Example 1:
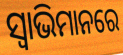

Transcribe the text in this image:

ସ୍ୱାଭିମାନରେ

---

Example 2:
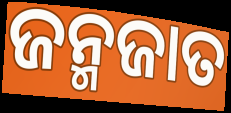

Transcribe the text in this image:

ଜନ୍ମଜାତ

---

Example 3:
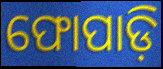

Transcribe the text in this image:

ଫୋପାଡ଼ି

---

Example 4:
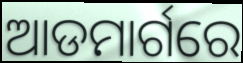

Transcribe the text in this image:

ଆଡମାର୍ଗରେ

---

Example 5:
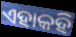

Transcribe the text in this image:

ଏହାକହି